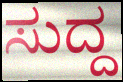
ಸುದ್ದ